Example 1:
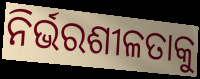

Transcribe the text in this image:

ନିର୍ଭରଶୀଳତାକୁ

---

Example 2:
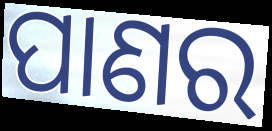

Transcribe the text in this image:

ପାଣର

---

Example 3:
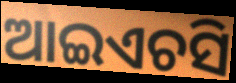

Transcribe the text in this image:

ଆଇଏଚସି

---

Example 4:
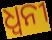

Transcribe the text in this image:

ଧ୍ବନୀ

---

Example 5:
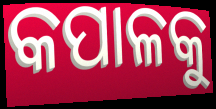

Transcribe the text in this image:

କପାଳକୁ